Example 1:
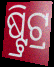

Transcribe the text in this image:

ଷ୍ଟ୍ରିଟ୍ର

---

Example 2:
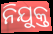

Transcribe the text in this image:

ନିଯୁକ୍ତ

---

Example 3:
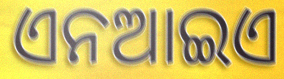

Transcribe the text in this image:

ଏନଆଇଏ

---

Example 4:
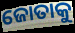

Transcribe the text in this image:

ଜୋତାକୁ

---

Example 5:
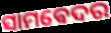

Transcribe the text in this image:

ସାମଵେଦର